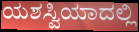
ಯಶಸ್ವಿಯಾದಲ್ಲಿ